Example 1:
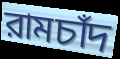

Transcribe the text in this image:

রামচাঁদ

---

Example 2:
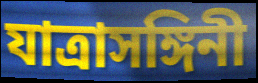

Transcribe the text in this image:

যাত্রাসঙ্গিনী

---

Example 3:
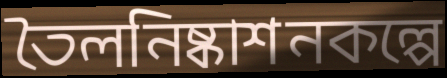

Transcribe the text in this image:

তৈলনিষ্কাশনকল্পে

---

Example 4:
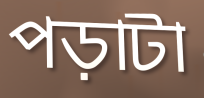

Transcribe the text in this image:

পড়াটা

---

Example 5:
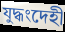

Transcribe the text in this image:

যুদ্ধংদেহী